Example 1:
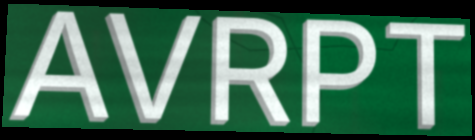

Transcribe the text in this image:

AVRPT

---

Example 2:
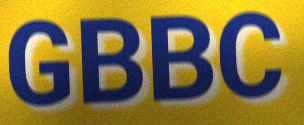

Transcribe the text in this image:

GBBC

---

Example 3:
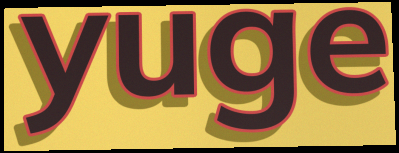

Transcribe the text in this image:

yuge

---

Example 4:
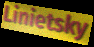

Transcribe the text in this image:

Linietsky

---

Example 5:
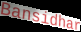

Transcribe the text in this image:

Bansidhar